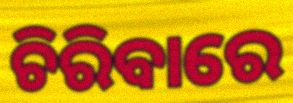
ଚିରିବାରେ